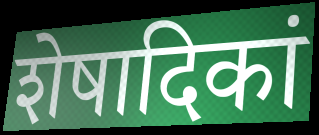
शेषादिकां